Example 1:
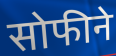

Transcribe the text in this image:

सोफीने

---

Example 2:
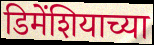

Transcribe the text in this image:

डिमेंशियाच्या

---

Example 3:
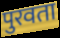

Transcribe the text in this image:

पुरवता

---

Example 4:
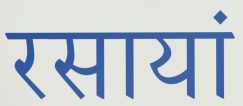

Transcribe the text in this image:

रसायां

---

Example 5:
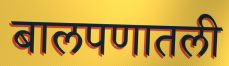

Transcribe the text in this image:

बालपणातली